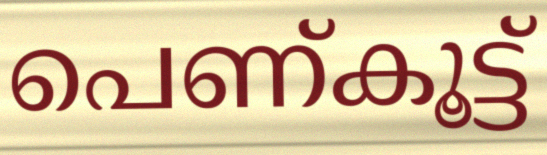
പെണ്കൂട്ട്